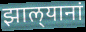
झाल्यानां